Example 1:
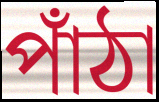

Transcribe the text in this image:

পাঁঠা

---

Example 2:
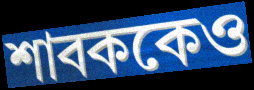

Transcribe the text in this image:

শাবককেও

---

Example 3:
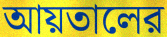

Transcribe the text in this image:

আয়তালের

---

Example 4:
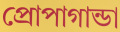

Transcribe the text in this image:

প্রোপাগান্ডা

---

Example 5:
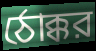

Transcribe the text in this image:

ঠোক্কর